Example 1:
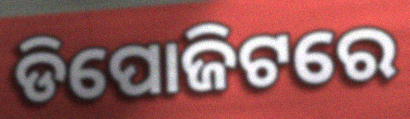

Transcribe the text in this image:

ଡିପୋଜିଟରେ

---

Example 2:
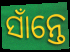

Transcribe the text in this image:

ସାଁନ୍ତେ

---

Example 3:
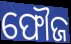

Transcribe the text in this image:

ଫୌଜ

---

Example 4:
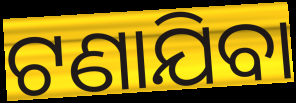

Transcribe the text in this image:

ଟଣାଯିବା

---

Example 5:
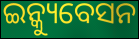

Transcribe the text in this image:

ଇନ୍କ୍ୟୁବେସନ